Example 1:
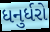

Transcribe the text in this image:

ધનુર્ધરો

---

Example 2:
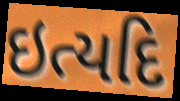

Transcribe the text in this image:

ઇત્યદિ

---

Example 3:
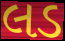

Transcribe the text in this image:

લડ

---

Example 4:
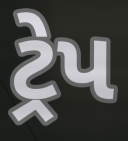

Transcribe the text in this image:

ટ્રેપ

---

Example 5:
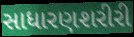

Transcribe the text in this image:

સાધારણશરીરી